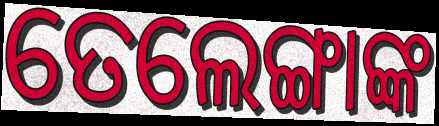
ତେଲେଙ୍ଗାଙ୍କ